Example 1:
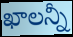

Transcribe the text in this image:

ఖాలన్నీ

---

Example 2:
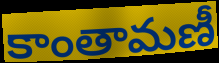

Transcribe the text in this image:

కాంతామణీ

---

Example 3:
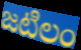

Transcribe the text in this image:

జటిలం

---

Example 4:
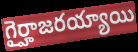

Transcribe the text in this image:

గైర్హాజరయ్యాయి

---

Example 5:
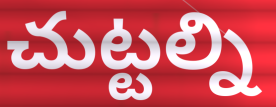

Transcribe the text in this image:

చుట్టల్ని